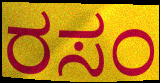
ರಸಂ